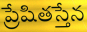
ప్రేషితస్తేన